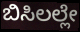
ಬಿಸಿಲಲ್ಲೇ